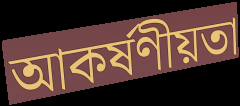
আকর্ষণীয়তা